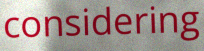
considering